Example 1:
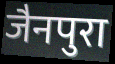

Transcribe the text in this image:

जैनपुरा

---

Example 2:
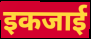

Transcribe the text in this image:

इकजाई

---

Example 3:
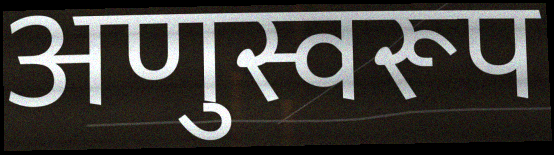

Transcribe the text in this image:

अणुस्वरूप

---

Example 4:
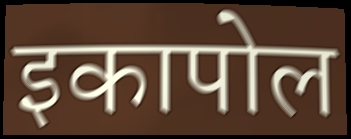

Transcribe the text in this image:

इकापोल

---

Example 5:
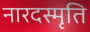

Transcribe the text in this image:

नारदस्मृति